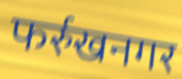
फर्रुखनगर